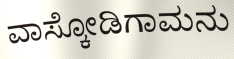
ವಾಸ್ಕೋಡಿಗಾಮನು